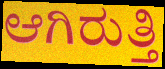
ಆಗಿರುತ್ತಿ